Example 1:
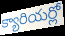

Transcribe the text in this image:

క్యారియర్లో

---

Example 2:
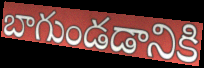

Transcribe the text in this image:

బాగుండడానికి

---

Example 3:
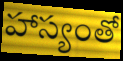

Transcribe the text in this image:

హాస్యంతో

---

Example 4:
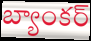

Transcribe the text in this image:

బ్యాంకర్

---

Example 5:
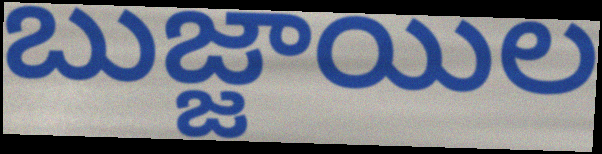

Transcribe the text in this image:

బుజ్జాయిల